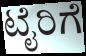
ಟೈರಿಗೆ